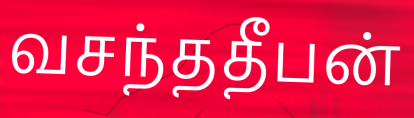
வசந்ததீபன்